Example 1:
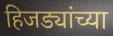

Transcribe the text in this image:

हिजड्यांच्या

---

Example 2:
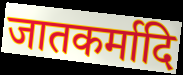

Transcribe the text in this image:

जातकर्मादि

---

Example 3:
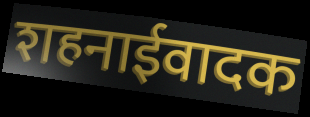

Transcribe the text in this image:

शहनाईवादक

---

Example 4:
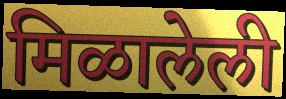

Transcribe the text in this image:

मिळालेली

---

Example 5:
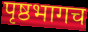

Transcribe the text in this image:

पृष्ठभागच